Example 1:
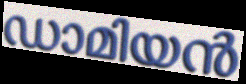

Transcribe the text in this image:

ഡാമിയൻ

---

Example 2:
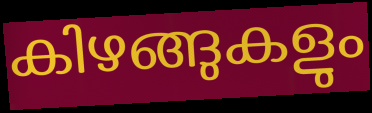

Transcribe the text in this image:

കിഴങ്ങുകളും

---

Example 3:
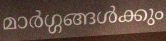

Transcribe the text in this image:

മാർഗ്ഗങ്ങൾക്കും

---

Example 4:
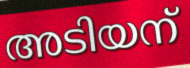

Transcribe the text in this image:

അടിയന്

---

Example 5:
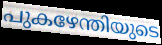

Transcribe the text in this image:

പുകഴേന്തിയുടെ